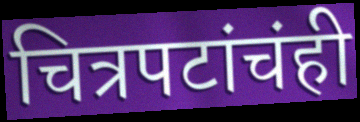
चित्रपटांचंही